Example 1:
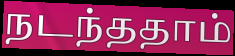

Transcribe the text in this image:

நடந்ததாம்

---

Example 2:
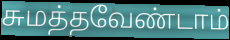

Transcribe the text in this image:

சுமத்தவேண்டாம்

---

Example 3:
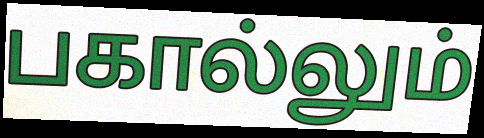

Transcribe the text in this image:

பகால்லும்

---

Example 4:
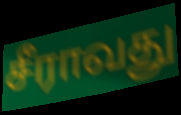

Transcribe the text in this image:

சீராவது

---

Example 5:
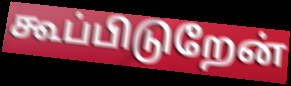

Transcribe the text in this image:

கூப்பிடுறேன்